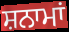
ਸ਼ਨਾਮਾਂ